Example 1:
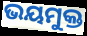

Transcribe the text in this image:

ଭୟମୁକ୍ତ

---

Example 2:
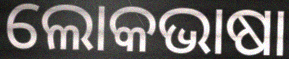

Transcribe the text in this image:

ଲୋକଭାଷା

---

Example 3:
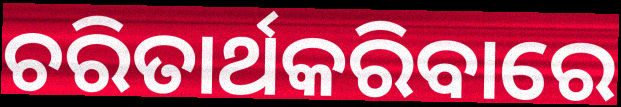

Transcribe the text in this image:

ଚରିତାର୍ଥକରିବାରେ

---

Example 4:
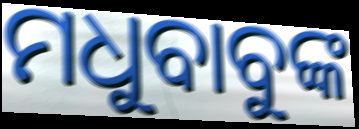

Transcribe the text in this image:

ମଧୁବାବୁଙ୍କ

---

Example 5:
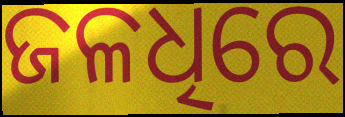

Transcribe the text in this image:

ଜଳଧିରେ